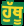
ਹੁੱਥੂ